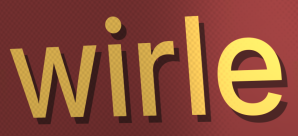
wirle